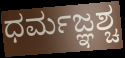
ಧರ್ಮಜ್ಞಶ್ಚ